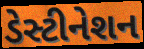
ડેસ્ટીનેશન